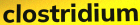
clostridium